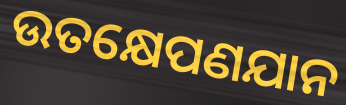
ଉତକ୍ଷେପଣଯାନ